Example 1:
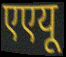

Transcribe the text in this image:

एएयू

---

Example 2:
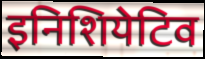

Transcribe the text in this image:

इनिशियेटिव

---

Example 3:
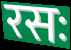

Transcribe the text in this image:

रसः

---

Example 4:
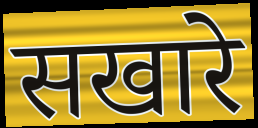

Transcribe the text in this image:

सखारे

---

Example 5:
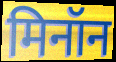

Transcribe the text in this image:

मिनॉन